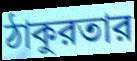
ঠাকুরতার